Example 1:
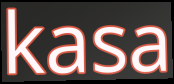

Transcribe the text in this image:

kasa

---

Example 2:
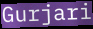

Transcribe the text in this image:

Gurjari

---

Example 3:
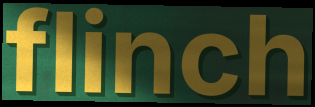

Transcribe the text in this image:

flinch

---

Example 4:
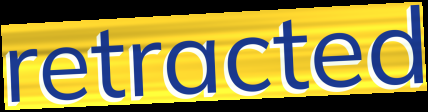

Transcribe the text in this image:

retracted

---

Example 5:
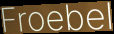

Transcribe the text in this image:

Froebel